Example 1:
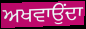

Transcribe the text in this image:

ਅਖਵਾਉਂਦਾ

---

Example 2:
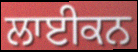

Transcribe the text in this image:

ਲਾਈਕਨ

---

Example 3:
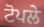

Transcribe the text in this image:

ਟੋਪਲੇ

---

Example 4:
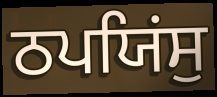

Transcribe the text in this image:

ਠਪਯਿਂਸੁ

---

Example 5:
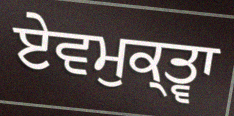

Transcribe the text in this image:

ਏਵਮੁਕ੍ਤ੍ਵਾ